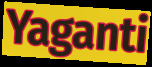
Yaganti